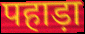
पहाड़ा